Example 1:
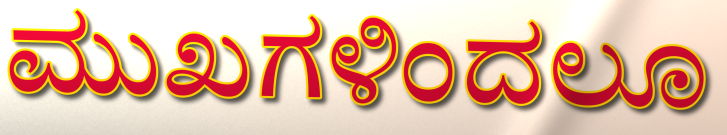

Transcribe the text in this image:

ಮುಖಗಳಿಂದಲೂ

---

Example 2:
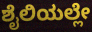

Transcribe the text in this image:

ಶೈಲಿಯಲ್ಲೇ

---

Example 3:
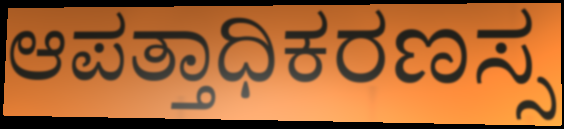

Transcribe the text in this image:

ಆಪತ್ತಾಧಿಕರಣಸ್ಸ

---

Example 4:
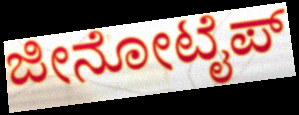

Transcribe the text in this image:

ಜೀನೋಟೈಪ್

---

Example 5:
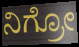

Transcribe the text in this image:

ನಿಗ್ರೋ